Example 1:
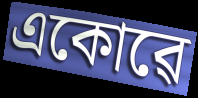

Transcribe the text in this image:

একোৱে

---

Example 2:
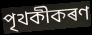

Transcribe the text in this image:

পৃথকীকৰণ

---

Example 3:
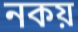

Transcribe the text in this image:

নকয়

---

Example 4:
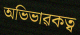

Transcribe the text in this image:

অভিভাৱকত্ব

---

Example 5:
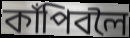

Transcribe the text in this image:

কাঁপিবলৈ